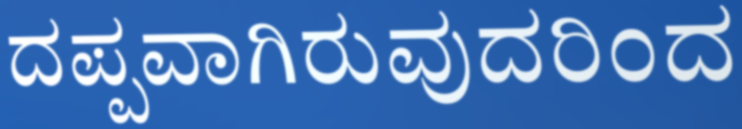
ದಪ್ಪವಾಗಿರುವುದರಿಂದ